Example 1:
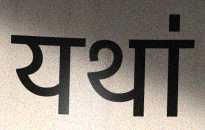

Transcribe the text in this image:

यथा॑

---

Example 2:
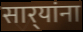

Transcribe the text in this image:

सार्‍यांना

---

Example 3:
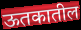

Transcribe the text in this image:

ऊतकातील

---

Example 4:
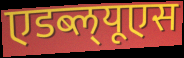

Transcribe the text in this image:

एडब्ल्यूएस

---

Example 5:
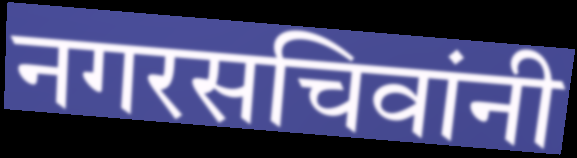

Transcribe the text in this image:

नगरसचिवांनी